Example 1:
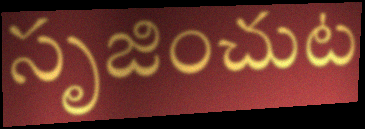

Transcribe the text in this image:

సృజించుట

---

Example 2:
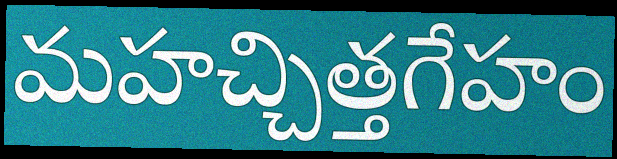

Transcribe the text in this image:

మహచ్చిత్తగేహం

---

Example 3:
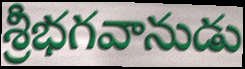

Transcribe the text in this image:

శ్రీభగవానుడు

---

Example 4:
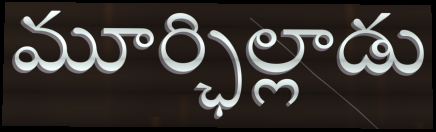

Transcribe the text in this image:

మూర్ఛిల్లాడు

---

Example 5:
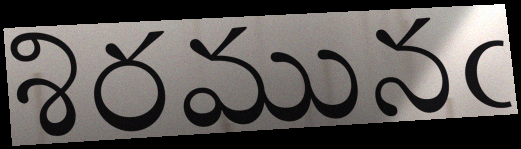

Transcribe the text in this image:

శిరమునఁ